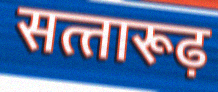
सत्‍तारूढ़